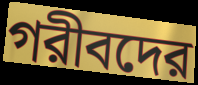
গরীবদের